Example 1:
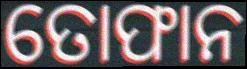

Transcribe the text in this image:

ତୋଫାନ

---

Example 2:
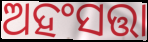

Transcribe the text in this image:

ଅହଂସତ୍ତା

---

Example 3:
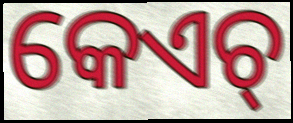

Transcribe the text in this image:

କେଏଚ୍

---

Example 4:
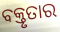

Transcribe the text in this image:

ବକ୍ତୃତାର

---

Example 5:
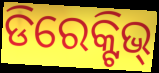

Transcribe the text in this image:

ଡିରେକ୍ଟିଭ୍